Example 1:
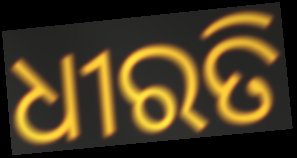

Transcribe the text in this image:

ଧୀରତି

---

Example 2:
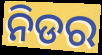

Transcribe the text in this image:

ନିଡର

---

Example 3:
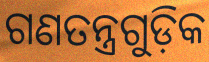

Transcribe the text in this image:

ଗଣତନ୍ତ୍ରଗୁଡ଼ିକ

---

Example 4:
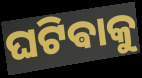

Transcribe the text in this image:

ଘଟିଵାକୁ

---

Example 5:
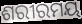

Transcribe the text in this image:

ଶରୀରମୟ